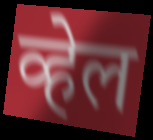
व्हेल